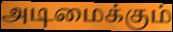
அடிமைக்கும்